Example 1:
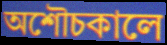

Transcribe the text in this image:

অশৌচকালে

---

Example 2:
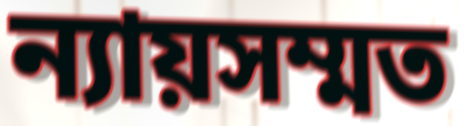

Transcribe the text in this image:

ন্যায়সম্মত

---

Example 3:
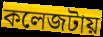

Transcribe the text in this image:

কলেজটায়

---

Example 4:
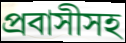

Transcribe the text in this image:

প্রবাসীসহ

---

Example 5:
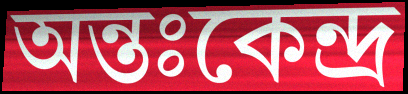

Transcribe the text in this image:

অন্তঃকেন্দ্র